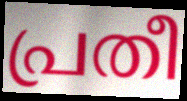
പ്രതീ